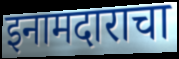
इनामदाराचा